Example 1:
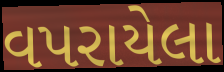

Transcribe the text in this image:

વપરાયેલા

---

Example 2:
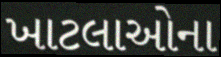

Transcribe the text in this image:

ખાટલાઓના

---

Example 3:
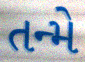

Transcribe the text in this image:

તન્મે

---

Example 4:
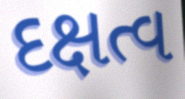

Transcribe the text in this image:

દક્ષત્વ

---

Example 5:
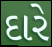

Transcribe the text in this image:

દારે